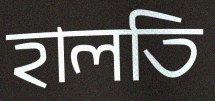
হালতি